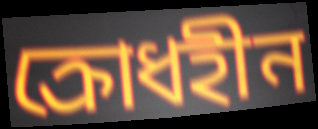
ক্রোধহীন